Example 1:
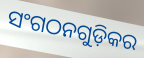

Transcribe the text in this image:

ସଂଗଠନଗୁଡ଼ିକର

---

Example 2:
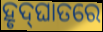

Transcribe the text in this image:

ହୃଦ୍‌ଘାତରେ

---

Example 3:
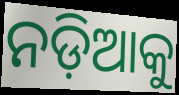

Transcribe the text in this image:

ନଡ଼ିଆକୁ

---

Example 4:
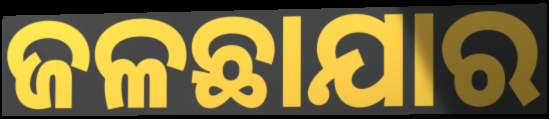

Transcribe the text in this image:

ଜଳଛାଯାର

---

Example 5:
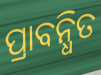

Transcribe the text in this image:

ପ୍ରାବନ୍ଧିତ